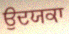
ਉਦਯਕਾ